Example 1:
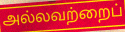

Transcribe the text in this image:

அல்லவற்றைப்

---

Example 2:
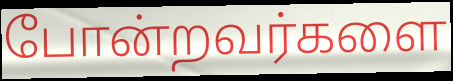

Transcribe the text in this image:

போன்றவர்களை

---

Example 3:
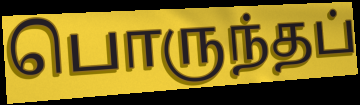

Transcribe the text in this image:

பொருந்தப்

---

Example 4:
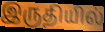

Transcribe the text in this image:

இருதியில்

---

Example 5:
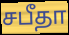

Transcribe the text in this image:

சபீதா